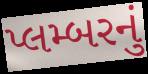
પ્લમ્બરનું